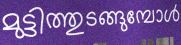
മുട്ടിത്തുടങ്ങുമ്പോൾ